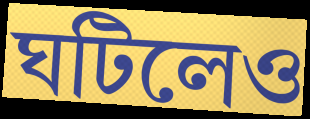
ঘটিলেও